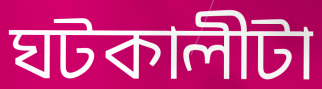
ঘটকালীটা